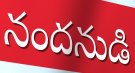
నందనుడి